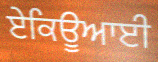
ਏਕਿਊਆਈ